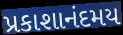
પ્રકાશાનંદમય